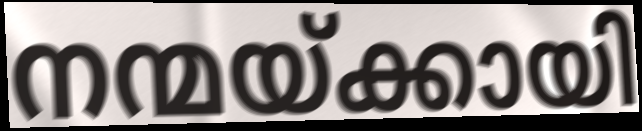
നന്മയ്ക്കായി